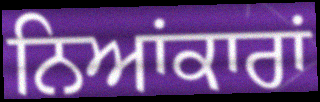
ਨਿਆਂਕਾਰਾਂ